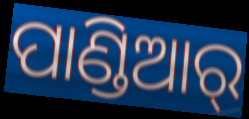
ପାଣ୍ଡିଆର୍